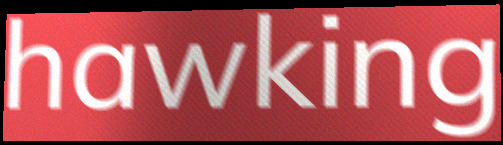
hawking